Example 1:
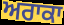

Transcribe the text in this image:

ਅਰਾਕਾ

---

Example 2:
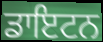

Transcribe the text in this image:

ਡਾਇਟਨ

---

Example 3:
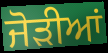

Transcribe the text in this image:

ਜੋਡ਼ੀਆਂ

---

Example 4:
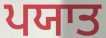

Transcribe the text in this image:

ਪਯਾਤ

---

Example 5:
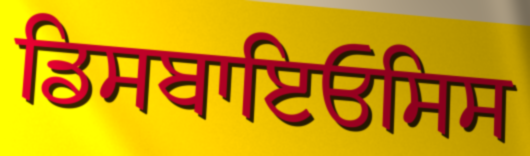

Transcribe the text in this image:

ਡਿਸਬਾਇਓਸਿਸ